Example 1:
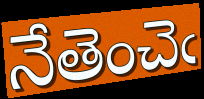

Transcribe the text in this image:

నేతెంచెఁ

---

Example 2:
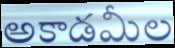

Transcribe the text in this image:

అకాడమీల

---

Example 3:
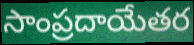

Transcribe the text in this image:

సాంప్రదాయేతర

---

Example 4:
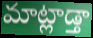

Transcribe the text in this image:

మాట్లాడ్తా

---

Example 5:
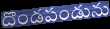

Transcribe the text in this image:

దొండపండును